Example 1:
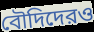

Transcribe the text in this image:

বৌদিদেরও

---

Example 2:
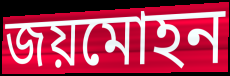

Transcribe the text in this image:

জয়মোহন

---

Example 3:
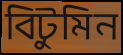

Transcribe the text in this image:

বিটুমিন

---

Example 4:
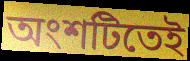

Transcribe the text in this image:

অংশটিতেই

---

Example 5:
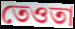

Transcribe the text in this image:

তেওতা